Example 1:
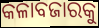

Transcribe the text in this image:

କଳାବଜାରକୁ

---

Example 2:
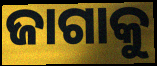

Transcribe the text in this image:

ଜାଗାକୁ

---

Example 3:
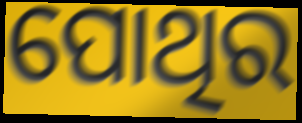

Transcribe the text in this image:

ପୋଥିର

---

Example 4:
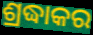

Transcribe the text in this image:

ଶ୍ରଦ୍ଧାକର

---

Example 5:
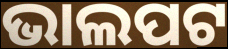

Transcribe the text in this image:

ଭାଲପଟ